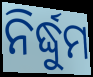
ନିର୍ଦ୍ଧୁମ